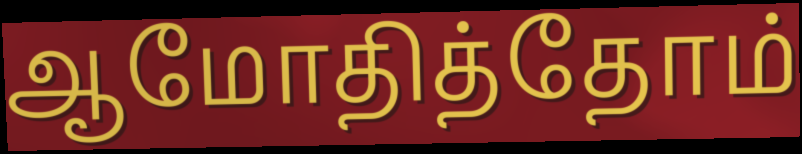
ஆமோதித்தோம்